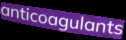
anticoagulants